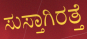
ಸುಸ್ತಾಗಿರತ್ತೆ